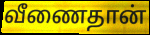
வீணைதான்